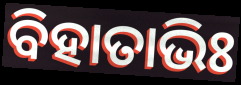
ବିହାତାଭିଃ